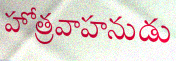
హోత్రవాహనుడు